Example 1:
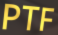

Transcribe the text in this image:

PTF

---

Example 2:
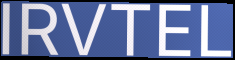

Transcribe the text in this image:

IRVTEL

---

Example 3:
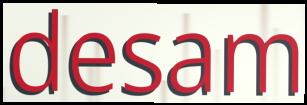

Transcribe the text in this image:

desam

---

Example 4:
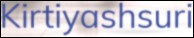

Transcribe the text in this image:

Kirtiyashsuri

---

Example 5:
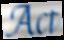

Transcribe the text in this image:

Act